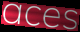
aces